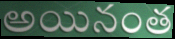
అయినంత